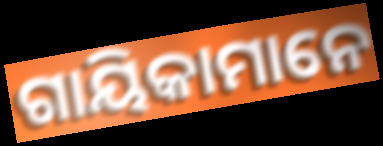
ଗାୟିକାମାନେ